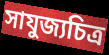
সাযুজ্যচিত্র